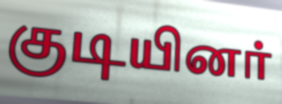
குடியினர்